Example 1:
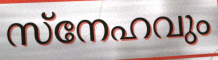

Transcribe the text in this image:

സ്നേഹവും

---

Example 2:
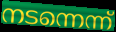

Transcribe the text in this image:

നടന്നെന്ന്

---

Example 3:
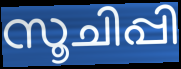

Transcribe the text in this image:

സൂചിപ്പി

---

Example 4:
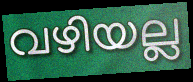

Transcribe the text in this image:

വഴിയല്ല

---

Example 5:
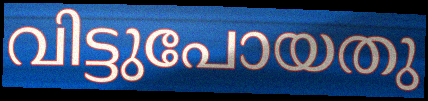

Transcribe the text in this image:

വിട്ടുപോയതു